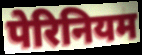
पेरिनियम